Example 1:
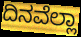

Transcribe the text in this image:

ದಿನವೆಲ್ಲಾ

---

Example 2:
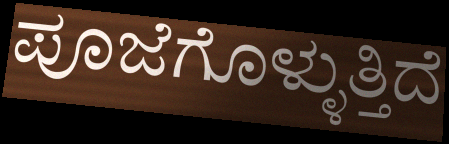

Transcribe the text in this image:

ಪೂಜೆಗೊಳ್ಳುತ್ತಿದೆ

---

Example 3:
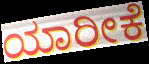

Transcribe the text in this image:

ಯಾರೀಕೆ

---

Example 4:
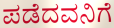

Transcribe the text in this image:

ಪಡೆದವನಿಗೆ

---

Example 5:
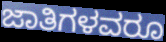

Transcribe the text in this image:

ಜಾತಿಗಳವರೂ